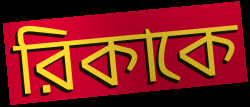
রিকাকে